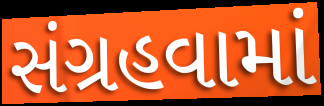
સંગ્રહવામાં